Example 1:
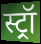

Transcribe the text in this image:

स्ट्रॉ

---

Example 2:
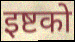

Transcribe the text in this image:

इष्टको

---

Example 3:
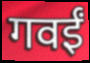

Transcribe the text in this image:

गवईं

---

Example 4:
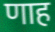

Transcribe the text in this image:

णाह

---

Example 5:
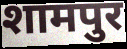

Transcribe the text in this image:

शामपुर